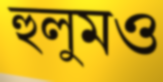
হুলুমও